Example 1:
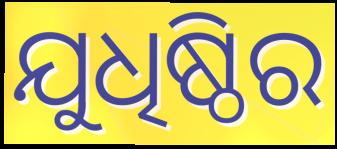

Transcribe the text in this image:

ଯୁଧିଷ୍ଠିର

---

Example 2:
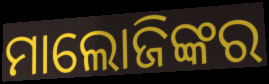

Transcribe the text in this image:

ମାଲୋଜିଙ୍କର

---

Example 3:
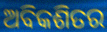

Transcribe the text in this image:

ଅବିକଶିତର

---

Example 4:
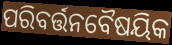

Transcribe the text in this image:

ପରିବର୍ତ୍ତନବୈଷୟିକ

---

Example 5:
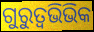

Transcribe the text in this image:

ଗୁରୁତ୍ଵଭିଭିକ